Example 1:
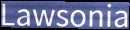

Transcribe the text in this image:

Lawsonia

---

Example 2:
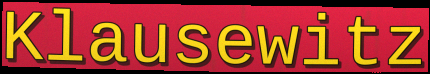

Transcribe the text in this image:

Klausewitz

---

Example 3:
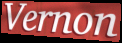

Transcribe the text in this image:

Vernon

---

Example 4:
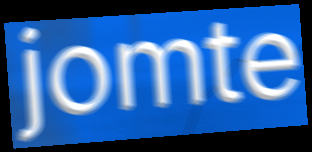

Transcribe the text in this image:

jomte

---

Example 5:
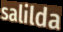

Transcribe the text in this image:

salilda